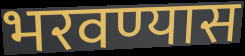
भरवण्यास